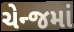
ચેન્જમાં